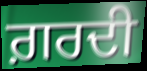
ਗ਼ਰਦੀ